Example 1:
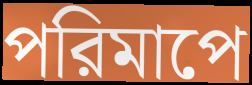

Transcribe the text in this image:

পরিমাপে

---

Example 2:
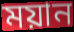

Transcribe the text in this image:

ময়ান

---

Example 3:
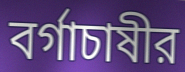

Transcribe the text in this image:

বর্গাচাষীর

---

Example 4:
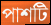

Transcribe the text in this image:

পাশটি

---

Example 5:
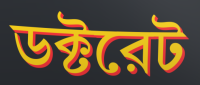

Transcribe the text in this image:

ডক্টরেট